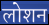
लोशन